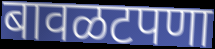
बावळटपणा